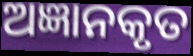
ଅଜ୍ଞାନକୃତ